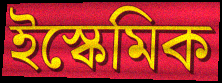
ইস্কেমিক